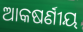
ଆକଷର୍ଣୀୟ